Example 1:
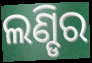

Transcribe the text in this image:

ଲଣ୍ଡିର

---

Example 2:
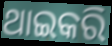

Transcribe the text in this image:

ଥାଇକରି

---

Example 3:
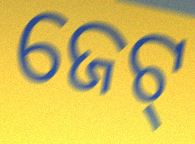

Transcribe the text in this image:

ଜେଟ୍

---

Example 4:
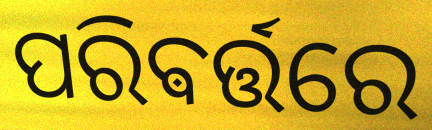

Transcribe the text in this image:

ପରିଵର୍ତ୍ତରେ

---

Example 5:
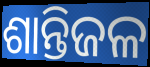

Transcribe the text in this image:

ଶାନ୍ତିଜଳ